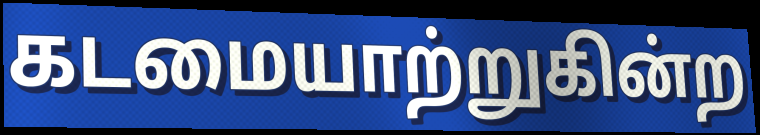
கடமையாற்றுகின்ற